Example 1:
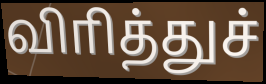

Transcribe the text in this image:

விரித்துச்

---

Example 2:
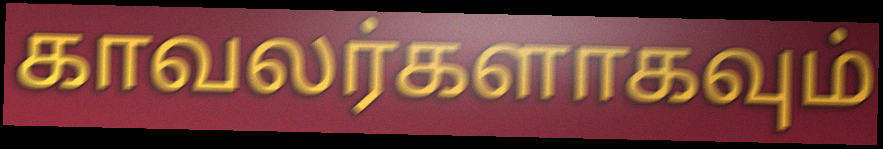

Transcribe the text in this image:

காவலர்களாகவும்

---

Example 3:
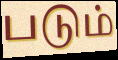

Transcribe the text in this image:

படும்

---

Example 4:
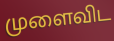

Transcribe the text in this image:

முளைவிட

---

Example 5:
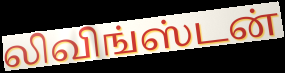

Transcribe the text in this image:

லிவிங்ஸ்டன்